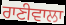
ਰਾਣੀਵਾਲਾ